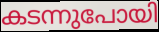
കടന്നുപോയി